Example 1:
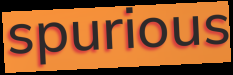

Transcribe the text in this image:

spurious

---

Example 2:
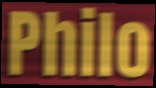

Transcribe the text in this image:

Philo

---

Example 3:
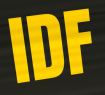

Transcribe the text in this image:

IDF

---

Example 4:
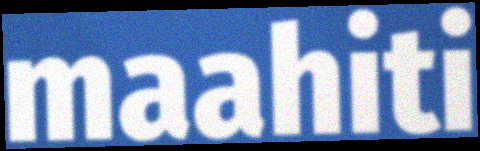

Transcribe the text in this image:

maahiti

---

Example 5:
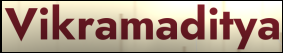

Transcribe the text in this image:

Vikramaditya